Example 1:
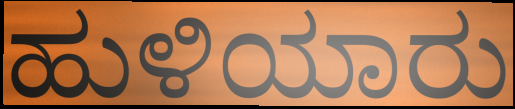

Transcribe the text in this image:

ಹುಳಿಯಾರು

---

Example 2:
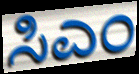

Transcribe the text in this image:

ಸಿಎಂ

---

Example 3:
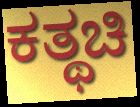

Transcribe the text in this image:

ಕತ್ಥಚಿ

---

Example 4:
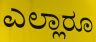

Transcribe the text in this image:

ಎಲ್ಲಾರೂ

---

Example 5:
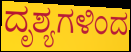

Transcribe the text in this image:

ದೃಶ್ಯಗಳಿಂದ